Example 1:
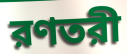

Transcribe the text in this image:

রণতরী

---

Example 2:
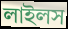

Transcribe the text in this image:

লাইলস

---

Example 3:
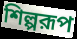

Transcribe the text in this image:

শিল্পরূপ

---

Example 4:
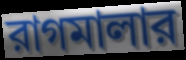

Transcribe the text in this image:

রাগমালার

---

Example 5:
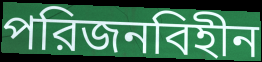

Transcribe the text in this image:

পরিজনবিহীন